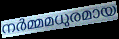
നർമ്മമധുരമായ